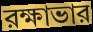
রক্ষাভার